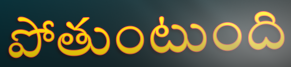
పోతుంటుంది